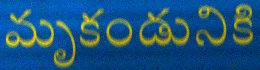
మృకండునికి